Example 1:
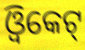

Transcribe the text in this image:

ଓ୍ଵିକେଟ୍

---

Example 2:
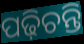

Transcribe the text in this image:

ପଢ଼ିଚନ୍ତି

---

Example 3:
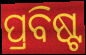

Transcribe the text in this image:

ପ୍ରବିଷ୍ଟ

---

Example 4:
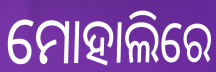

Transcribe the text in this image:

ମୋହାଲିରେ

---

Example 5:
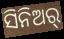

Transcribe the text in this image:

ସିନିଅର୍